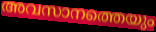
അവസാനത്തെയും